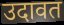
उदावत